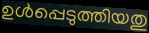
ഉൾപ്പെടുത്തിയതു